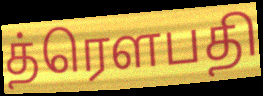
த்ரௌபதி